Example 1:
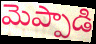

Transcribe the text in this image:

మెప్పాడి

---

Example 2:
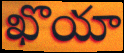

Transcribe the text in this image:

ఖొయా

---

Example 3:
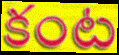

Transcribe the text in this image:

కంట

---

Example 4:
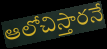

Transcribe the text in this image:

ఆలోచిస్తారనే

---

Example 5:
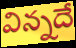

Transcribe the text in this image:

విన్నదే